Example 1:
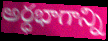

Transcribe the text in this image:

అర్ధభాగాన్ని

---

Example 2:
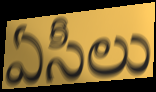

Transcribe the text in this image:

ఏసీలు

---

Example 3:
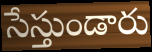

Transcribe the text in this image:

సేస్తుండారు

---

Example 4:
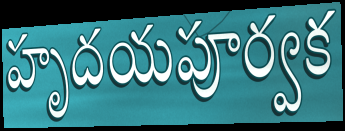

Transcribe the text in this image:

హృదయపూర్వక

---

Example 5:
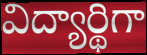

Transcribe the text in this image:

విద్యార్థిగా